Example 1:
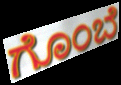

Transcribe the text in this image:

ಗೊಂಬೆ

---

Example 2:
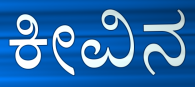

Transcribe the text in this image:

ಕೀವಿನ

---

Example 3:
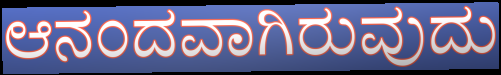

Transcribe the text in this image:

ಆನಂದವಾಗಿರುವುದು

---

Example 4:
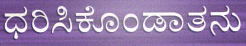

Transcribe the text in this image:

ಧರಿಸಿಕೊಂಡಾತನು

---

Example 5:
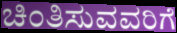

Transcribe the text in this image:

ಚಿಂತಿಸುವವರಿಗೆ